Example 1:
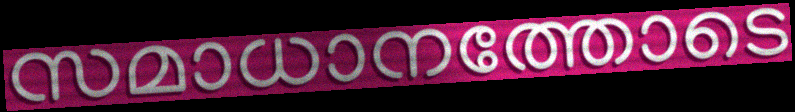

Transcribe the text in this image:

സമാധാനത്തോടെ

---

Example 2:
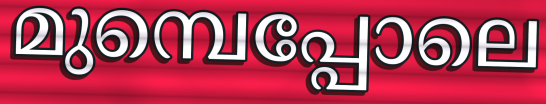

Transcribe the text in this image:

മുമ്പെപ്പോലെ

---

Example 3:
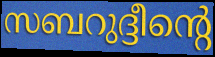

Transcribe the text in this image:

സബറുദ്ദീന്റെ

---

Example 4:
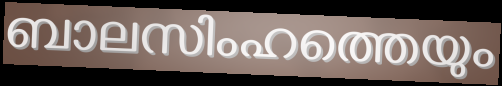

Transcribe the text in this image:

ബാലസിംഹത്തെയും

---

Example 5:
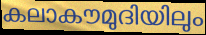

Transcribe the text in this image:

കലാകൗമുദിയിലും